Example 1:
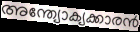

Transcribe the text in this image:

അന്ത്യോക്യക്കാരൻ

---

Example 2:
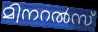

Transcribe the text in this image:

മിനറൽസ്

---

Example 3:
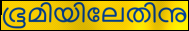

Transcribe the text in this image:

ഭൂമിയിലേതിനു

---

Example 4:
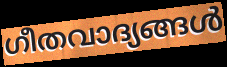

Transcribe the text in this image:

ഗീതവാദ്യങ്ങൾ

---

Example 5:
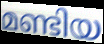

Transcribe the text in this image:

മണ്ടിയ